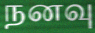
நனவு